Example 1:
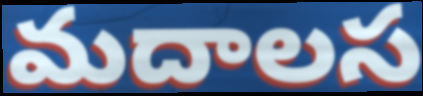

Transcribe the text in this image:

మదాలస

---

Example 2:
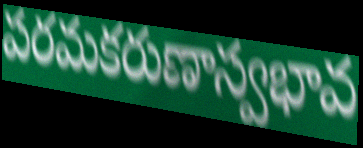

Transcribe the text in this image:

పరమకరుణాస్వభావ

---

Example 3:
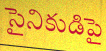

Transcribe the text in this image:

సైనికుడిపై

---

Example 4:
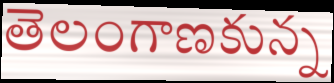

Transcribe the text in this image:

తెలంగాణకున్న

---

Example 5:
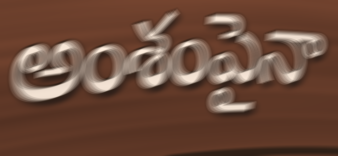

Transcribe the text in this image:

అంశంపైనా